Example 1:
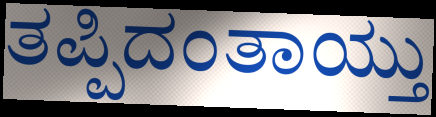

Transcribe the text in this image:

ತಪ್ಪಿದಂತಾಯ್ತು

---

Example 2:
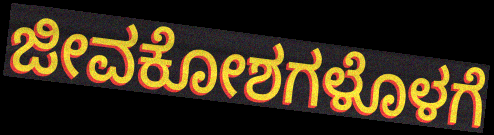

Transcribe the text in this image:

ಜೀವಕೋಶಗಳೊಳಗೆ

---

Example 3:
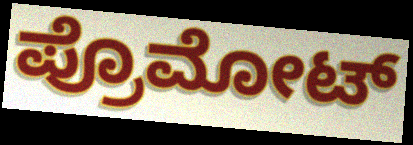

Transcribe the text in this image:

ಪ್ರೊಮೋಟ್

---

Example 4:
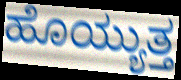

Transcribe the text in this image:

ಹೊಯ್ಯುತ್ತ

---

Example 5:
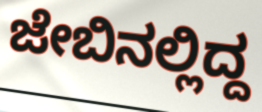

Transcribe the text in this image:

ಜೇಬಿನಲ್ಲಿದ್ದ